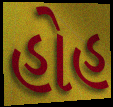
હોહ